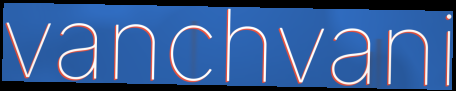
vanchvani